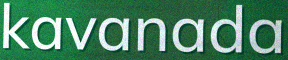
kavanada